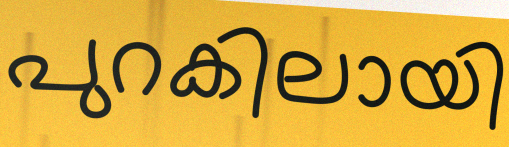
പുറകിലായി